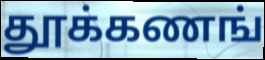
தூக்கணங்